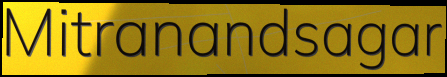
Mitranandsagar